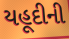
યહૂદીની